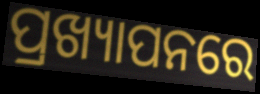
ପ୍ରଖ୍ୟାପନରେ